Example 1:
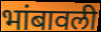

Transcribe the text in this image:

भांबावली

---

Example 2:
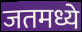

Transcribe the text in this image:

जतमध्ये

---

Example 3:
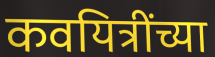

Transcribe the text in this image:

कवयित्रींच्या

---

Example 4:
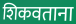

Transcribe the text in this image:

शिकवताना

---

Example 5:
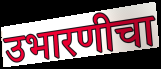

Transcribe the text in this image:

उभारणीचा